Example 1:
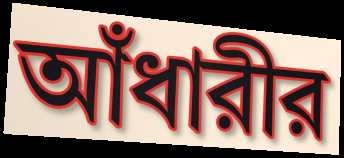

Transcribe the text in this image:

আঁধারীর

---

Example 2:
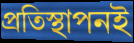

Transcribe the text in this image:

প্রতিস্থাপনই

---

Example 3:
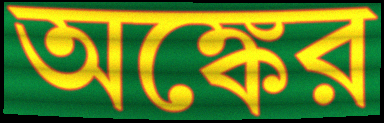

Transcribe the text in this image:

অঙ্কের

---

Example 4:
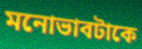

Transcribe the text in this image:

মনোভাবটাকে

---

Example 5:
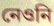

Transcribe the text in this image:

নেওনি